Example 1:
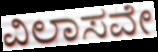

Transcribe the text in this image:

ವಿಲಾಸವೇ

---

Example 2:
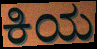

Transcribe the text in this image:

ಕಿಯ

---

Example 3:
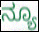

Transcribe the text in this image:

ನ್ಯೂ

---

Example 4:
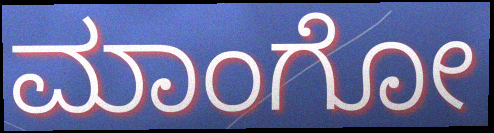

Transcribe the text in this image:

ಮಾಂಗೋ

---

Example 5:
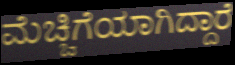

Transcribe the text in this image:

ಮೆಚ್ಚಿಗೆಯಾಗಿದ್ದಾರೆ